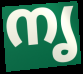
നൃ